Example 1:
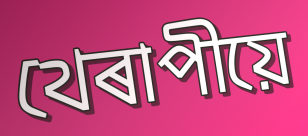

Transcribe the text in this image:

থেৰাপীয়ে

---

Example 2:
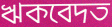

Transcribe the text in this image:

ঋকবেদত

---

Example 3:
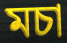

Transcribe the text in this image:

মচা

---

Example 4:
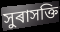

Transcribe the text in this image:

সুৰাসক্তি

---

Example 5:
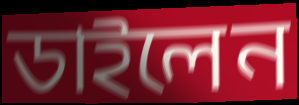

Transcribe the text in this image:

ডাইলেন